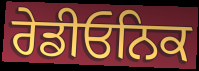
ਰੇਡੀਓਨਿਕ